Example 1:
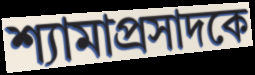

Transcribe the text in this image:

শ্যামাপ্রসাদকে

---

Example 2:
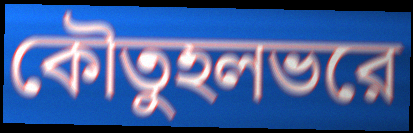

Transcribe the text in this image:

কৌতুহলভরে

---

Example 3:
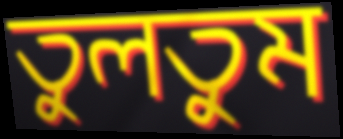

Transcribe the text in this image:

তুলতুম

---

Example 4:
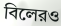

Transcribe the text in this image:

বিলেরও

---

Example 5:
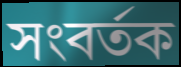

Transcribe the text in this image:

সংবর্তক